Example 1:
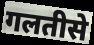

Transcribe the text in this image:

गलतीसे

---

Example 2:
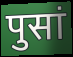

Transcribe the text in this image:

पुसां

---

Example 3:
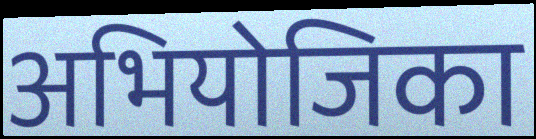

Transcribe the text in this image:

अभियोजिका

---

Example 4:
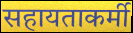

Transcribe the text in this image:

सहायताकर्मी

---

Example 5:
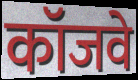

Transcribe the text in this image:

कॉजवे